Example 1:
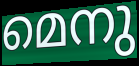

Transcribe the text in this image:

മെനു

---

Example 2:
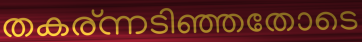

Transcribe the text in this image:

തകര്ന്നടിഞ്ഞതോടെ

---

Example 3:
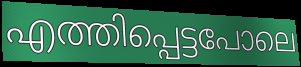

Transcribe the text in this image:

എത്തിപ്പെട്ടപോലെ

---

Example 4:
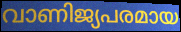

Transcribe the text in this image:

വാണിജ്യപരമായ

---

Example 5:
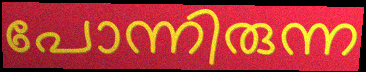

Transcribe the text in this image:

പോന്നിരുന്ന